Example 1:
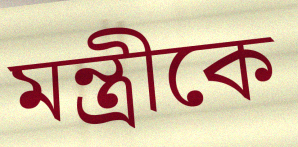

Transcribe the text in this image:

মন্ত্রীকে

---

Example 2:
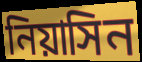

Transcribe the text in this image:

নিয়াসিন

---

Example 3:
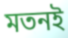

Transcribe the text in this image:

মতনই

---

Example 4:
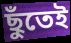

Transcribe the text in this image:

ছুঁতেই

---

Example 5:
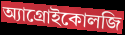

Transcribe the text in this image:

অ্যাগ্রোইকোলজি